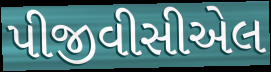
પીજીવીસીએલ